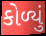
કોળ્યું